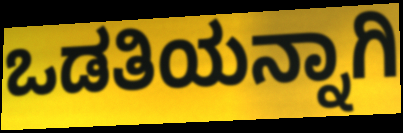
ಒಡತಿಯನ್ನಾಗಿ